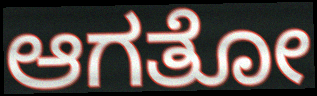
ಆಗತೋ